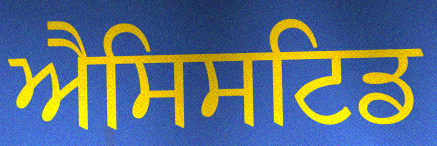
ਐਸਿਸਟਿਡ